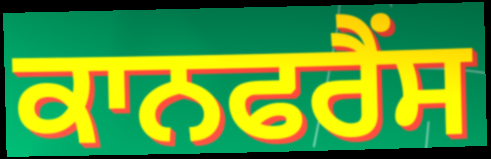
ਕਾਨਫਰੈਂਸ